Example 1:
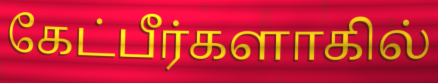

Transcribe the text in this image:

கேட்பீர்களாகில்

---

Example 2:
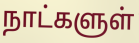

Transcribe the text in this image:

நாட்களுள்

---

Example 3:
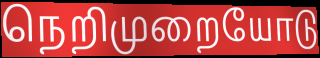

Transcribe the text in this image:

நெறிமுறையோடு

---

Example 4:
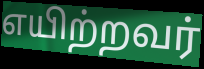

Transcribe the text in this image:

எயிற்றவர்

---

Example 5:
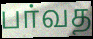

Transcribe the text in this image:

பர்வத